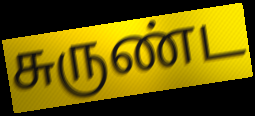
சுருண்ட